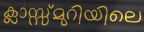
ക്ലാസ്സ്മുറിയിലെ